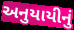
અનુયાયીનું